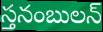
స్తనంబులన్